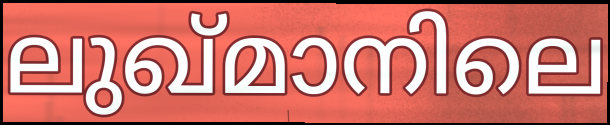
ലുഖ്മാനിലെ